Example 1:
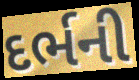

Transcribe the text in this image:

દર્ભની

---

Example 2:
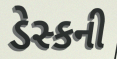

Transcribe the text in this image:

ડેસ્કની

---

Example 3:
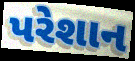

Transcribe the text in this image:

પરેશાન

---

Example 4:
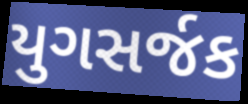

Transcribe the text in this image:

યુગસર્જક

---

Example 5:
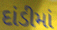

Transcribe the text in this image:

દાંડીમાં